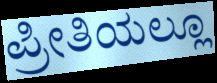
ಪ್ರೀತಿಯಲ್ಲೂ